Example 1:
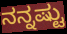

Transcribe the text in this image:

ನನ್ನಷ್ಟು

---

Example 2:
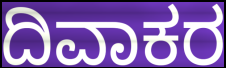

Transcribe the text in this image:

ದಿವಾಕರ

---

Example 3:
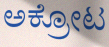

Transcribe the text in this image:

ಅಕ್ರೋಟ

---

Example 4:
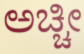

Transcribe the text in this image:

ಅಚ್ಚೀ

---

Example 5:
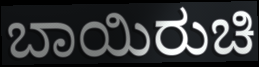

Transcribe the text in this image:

ಬಾಯಿರುಚಿ